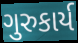
ગુરુકાર્ય